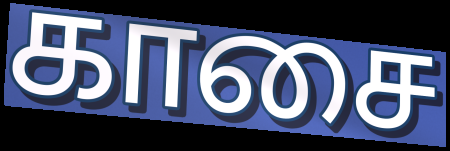
காசை